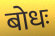
बोधः